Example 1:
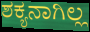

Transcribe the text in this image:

ಶಕ್ಯನಾಗಿಲ್ಲ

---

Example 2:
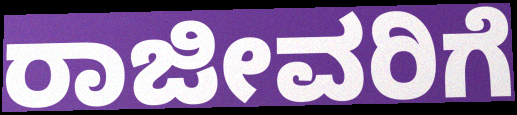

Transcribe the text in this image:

ರಾಜೀವರಿಗೆ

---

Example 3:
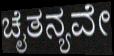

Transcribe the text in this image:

ಚೈತನ್ಯವೇ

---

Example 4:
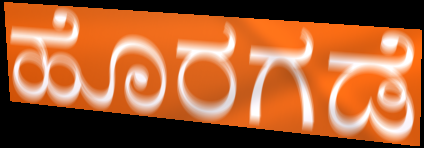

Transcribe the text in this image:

ಹೊರಗಡೆ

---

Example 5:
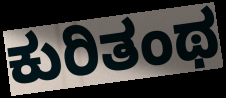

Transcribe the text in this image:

ಕುರಿತಂಥ